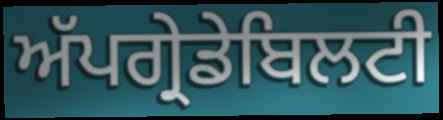
ਅੱਪਗ੍ਰੇਡੇਬਿਲਟੀ